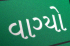
વાગ્યો